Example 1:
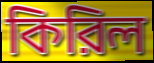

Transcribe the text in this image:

কিরিল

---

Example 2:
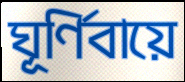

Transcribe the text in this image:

ঘূর্ণিবায়ে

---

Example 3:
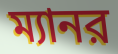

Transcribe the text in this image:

ম্যানর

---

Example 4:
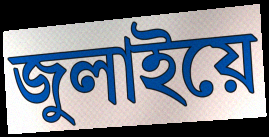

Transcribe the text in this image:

জুলাইয়ে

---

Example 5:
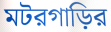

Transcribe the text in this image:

মটরগাড়ির